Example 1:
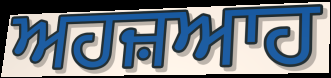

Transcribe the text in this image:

ਅਹਜ਼ਆਹ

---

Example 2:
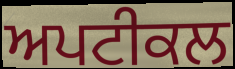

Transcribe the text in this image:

ਅਪਟੀਕਲ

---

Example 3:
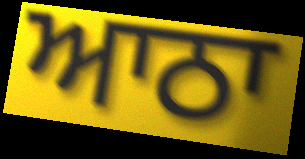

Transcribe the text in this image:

ਆਠਾ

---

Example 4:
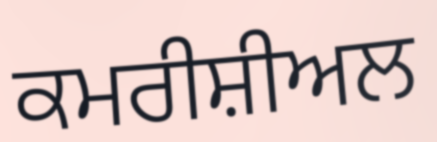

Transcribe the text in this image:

ਕਮਰੀਸ਼ੀਅਲ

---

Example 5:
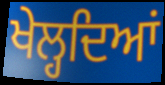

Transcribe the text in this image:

ਖੇਲ੍ਹਦਿਆਂ